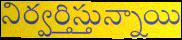
నిర్వర్తిస్తున్నాయి